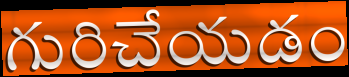
గురిచేయడం